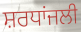
ਸ਼ਰਧਾਂਜਲੀ